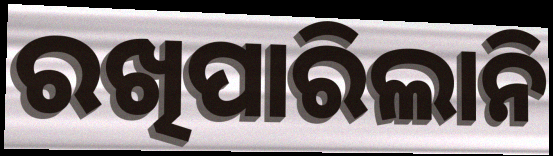
ରଖିପାରିଲାନି